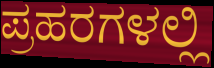
ಪ್ರಹರಗಳಲ್ಲಿ